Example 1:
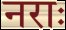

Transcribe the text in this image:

नराः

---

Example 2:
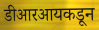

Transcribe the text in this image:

डीआरआयकडून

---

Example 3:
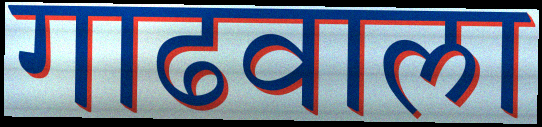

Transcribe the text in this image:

गाढवाला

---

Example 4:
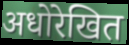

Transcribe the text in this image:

अधोरेखित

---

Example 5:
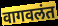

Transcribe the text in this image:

वागवलंत